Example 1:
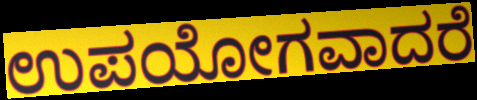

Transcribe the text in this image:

ಉಪಯೋಗವಾದರೆ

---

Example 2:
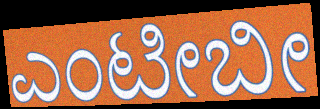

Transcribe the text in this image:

ಎಂಟೀಬೀ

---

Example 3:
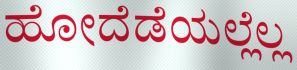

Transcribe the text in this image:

ಹೋದೆಡೆಯಲ್ಲೆಲ್ಲ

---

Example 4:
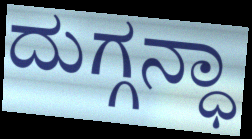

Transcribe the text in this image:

ದುಗ್ಗನ್ಧಾ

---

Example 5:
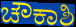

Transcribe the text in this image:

ಚೌಕಾಶಿ